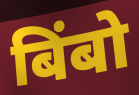
बिंबो